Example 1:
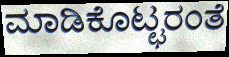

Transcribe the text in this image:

ಮಾಡಿಕೊಟ್ಟರಂತೆ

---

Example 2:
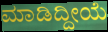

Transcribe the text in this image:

ಮಾಡಿದ್ದೀಯೆ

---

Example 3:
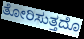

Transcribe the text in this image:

ತೋರಿಸುತ್ತದೊ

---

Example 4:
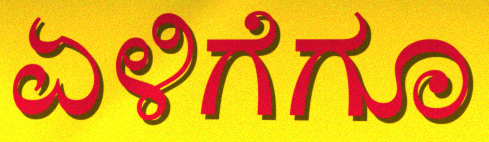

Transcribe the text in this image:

ಏಳಿಗೆಗೂ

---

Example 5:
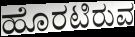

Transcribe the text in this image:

ಹೊರಟಿರುವ